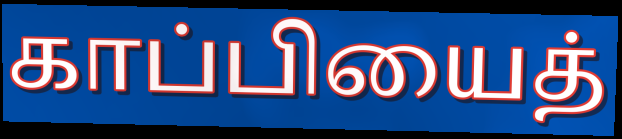
காப்பியைத்